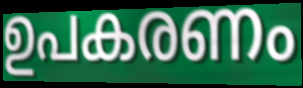
ഉപകരണം